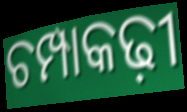
ଚମ୍ପାକଢ଼ୀ